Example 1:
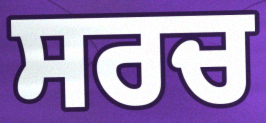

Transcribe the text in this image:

ਸਰਚ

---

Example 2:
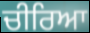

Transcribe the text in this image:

ਚੀਰਿਆ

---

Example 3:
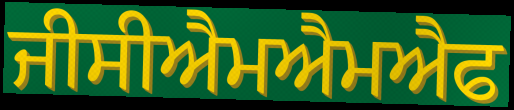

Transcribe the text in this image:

ਜੀਸੀਐਮਐਮਐਫ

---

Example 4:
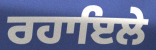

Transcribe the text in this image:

ਰਹਾਇਲੇ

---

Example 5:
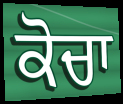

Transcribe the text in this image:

ਕੋਚਾ